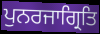
ਪੁਨਰਜਾਗ੍ਰਿਤਿ